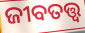
ଜୀବତତ୍ତ୍ୱ